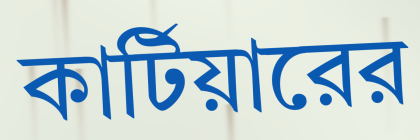
কার্টিয়ারের